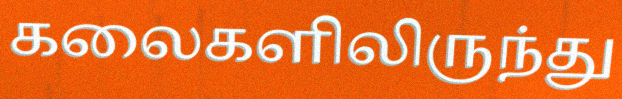
கலைகளிலிருந்து